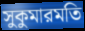
সুকুমারমতি